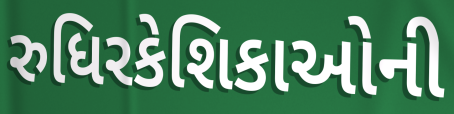
રુધિરકેશિકાઓની